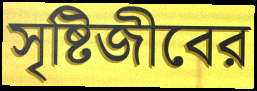
সৃষ্টিজীবের